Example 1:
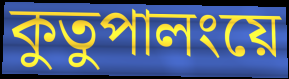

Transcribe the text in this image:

কুতুপালংয়ে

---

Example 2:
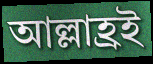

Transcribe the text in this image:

আল্লাহ্রই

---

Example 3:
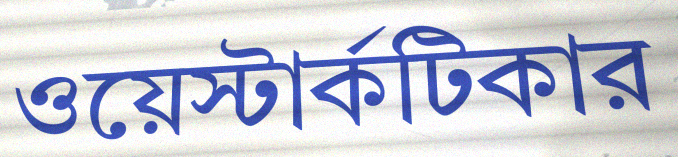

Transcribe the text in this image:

ওয়েস্টার্কটিকার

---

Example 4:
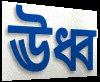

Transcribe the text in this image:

ঊধ্ব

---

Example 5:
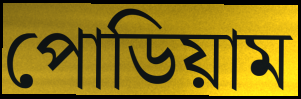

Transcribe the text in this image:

পোডিয়াম